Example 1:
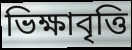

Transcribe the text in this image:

ভিক্ষাবৃত্তি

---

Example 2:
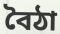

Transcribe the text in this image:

বৈঠা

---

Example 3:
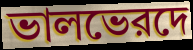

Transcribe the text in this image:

ভালভেরদে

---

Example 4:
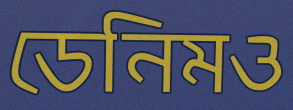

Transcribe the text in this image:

ডেনিমও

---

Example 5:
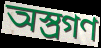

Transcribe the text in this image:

অস্ত্রগণ